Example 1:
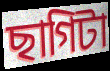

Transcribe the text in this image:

ছাগিটা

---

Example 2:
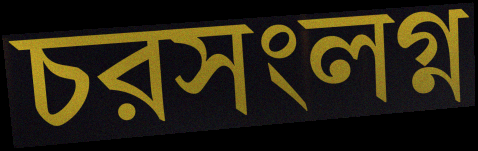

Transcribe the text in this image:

চরসংলগ্ন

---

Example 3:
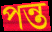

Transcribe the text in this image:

পন্ত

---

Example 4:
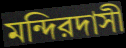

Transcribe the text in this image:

মন্দিরদাসী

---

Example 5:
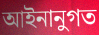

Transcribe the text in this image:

আইনানুগত